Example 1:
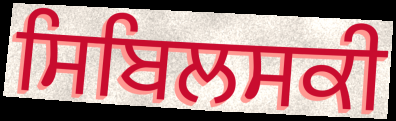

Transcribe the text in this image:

ਸਿਬਿਲਸਕੀ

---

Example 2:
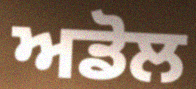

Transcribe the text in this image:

ਅਡੋਲ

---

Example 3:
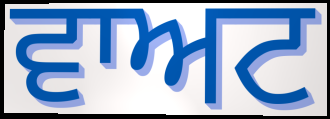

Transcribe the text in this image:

ਵਾਅਟ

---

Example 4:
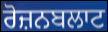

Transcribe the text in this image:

ਰੋਜ਼ਨਬਲਾਟ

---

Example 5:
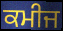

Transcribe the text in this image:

ਕਮੀਜ